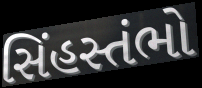
સિંહસ્તંભો